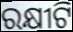
ରକ୍ଷୀଟି